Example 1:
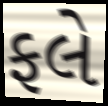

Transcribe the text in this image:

ફલે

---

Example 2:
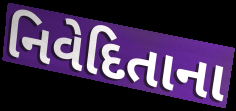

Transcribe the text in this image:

નિવેદિતાના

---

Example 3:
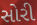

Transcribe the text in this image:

સોરી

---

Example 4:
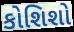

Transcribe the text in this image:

કોશિશો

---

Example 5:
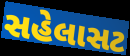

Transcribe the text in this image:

સહેલાસટ